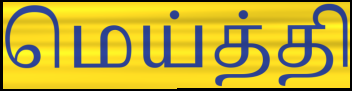
மெய்த்தி